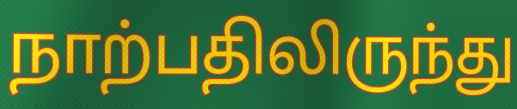
நாற்பதிலிருந்து